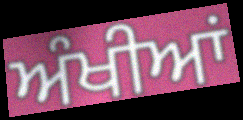
ਅੰਖੀਆਂ